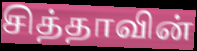
சித்தாவின்